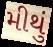
મીથું